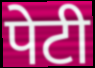
पेटी